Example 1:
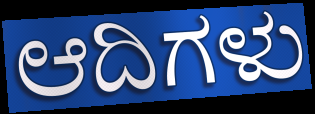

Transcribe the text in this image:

ಆದಿಗಳು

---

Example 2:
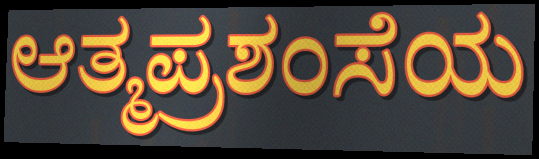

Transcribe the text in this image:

ಆತ್ಮಪ್ರಶಂಸೆಯ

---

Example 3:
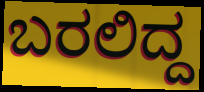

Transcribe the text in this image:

ಬರಲಿದ್ದ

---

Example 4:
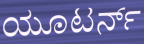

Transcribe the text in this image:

ಯೂಟರ್ನ್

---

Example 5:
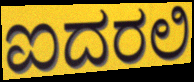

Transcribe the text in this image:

ಐದರಲಿ